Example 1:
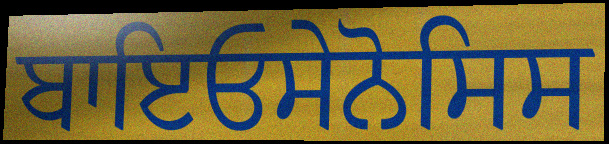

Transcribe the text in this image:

ਬਾਇਓਸੇਨੋਸਿਸ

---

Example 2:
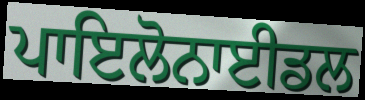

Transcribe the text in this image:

ਪਾਇਲੋਨਾਈਡਲ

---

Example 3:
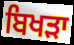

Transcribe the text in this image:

ਬਿਖੜਾ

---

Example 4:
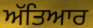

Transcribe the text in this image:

ਅੱਤਿਆਰ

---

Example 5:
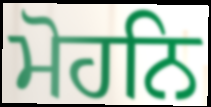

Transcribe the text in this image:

ਮੋਹਨਿ